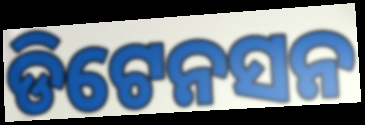
ଡିଟେନସନ